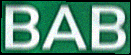
BAB